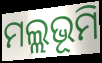
ମଲ୍ଲଭୂମି